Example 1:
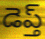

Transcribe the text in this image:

డెప్త్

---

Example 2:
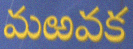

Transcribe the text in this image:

మఱవక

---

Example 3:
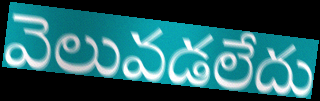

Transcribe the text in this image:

వెలువడలేదు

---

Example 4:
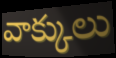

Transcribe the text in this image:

వాక్కులు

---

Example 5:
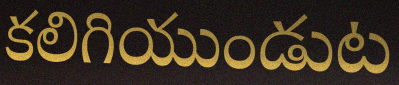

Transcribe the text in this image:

కలిగియుండుట